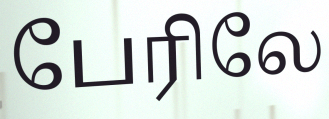
பேரிலே